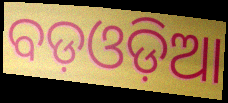
ବଡ଼ଓଡ଼ିଆ